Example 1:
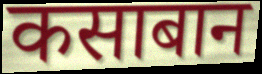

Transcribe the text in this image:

कसाबान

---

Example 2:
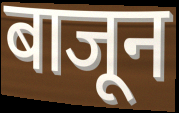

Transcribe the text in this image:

बाजून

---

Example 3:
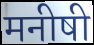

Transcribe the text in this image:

मनीषी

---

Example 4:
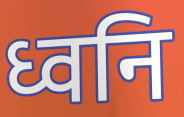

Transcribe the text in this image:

ध्वनि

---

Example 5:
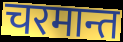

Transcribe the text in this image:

चरमान्त